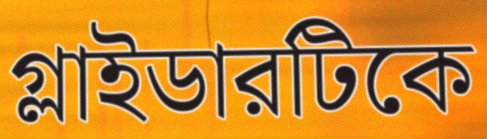
গ্লাইডারটিকে